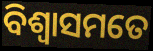
ବିଶ୍ୱାସମତେ